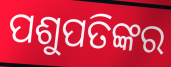
ପଶୁପତିଙ୍କର